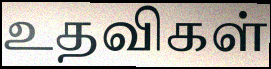
உதவிகள்